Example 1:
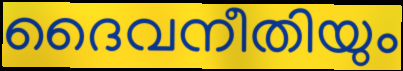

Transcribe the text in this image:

ദൈവനീതിയും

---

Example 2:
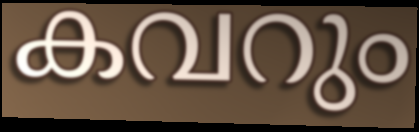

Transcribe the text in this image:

കവറും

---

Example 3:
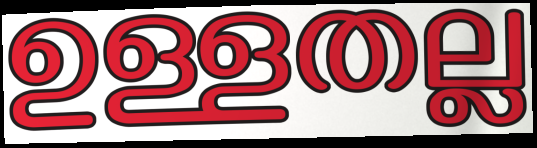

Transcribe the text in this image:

ഉള്ളതല്ല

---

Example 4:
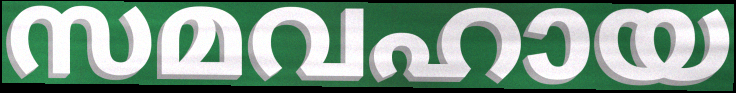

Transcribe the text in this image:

സമവഹായ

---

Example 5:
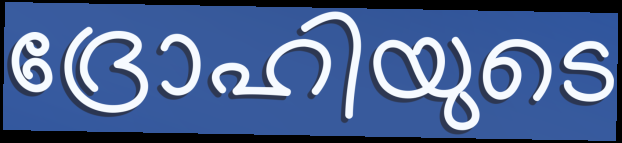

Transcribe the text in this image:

ദ്രോഹിയുടെ